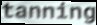
tanning